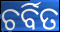
ଚର୍ବିତ